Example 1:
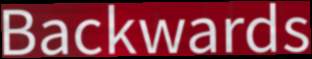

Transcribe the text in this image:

Backwards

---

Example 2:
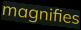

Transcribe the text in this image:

magnifies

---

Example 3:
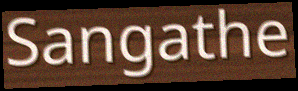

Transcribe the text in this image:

Sangathe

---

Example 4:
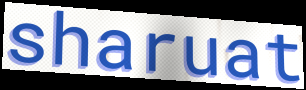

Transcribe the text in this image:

sharuat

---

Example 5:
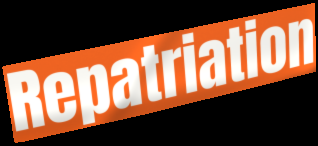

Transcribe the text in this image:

Repatriation